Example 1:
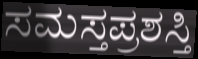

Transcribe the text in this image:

ಸಮಸ್ತಪ್ರಶಸ್ತಿ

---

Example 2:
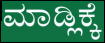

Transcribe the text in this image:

ಮಾಡ್ಲಿಕ್ಕೆ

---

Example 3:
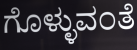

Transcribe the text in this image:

ಗೊಳ್ಳುವಂತೆ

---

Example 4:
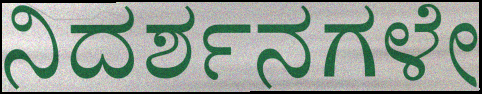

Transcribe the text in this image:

ನಿದರ್ಶನಗಳೇ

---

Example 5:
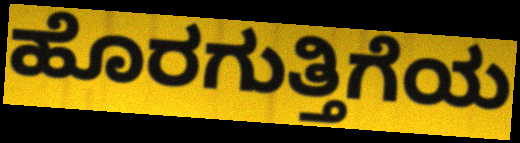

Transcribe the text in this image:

ಹೊರಗುತ್ತಿಗೆಯ